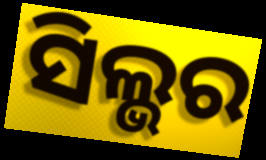
ସିଲ୍ଭର